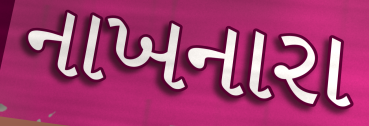
નાખનારા